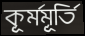
কূর্মমূর্তি